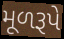
મૂળરૂપે